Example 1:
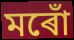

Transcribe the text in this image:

মৰোঁ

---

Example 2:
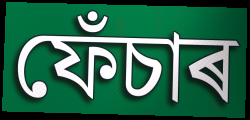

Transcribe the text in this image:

ফেঁচাৰ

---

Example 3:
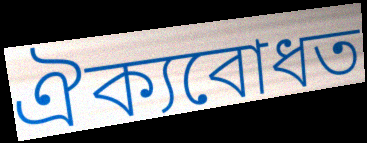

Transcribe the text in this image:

ঐক্যবোধত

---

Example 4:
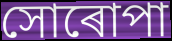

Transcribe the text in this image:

সোৰোপা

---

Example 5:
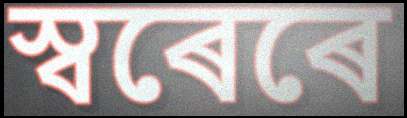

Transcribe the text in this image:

স্বৰেৰে